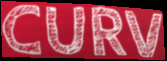
CURV